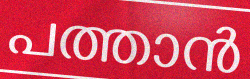
പത്താൻ